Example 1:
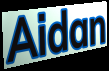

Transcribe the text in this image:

Aidan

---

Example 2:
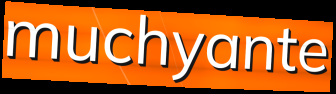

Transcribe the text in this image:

muchyante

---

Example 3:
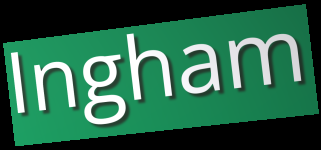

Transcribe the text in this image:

Ingham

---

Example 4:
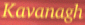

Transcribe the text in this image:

Kavanagh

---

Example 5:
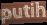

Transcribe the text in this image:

putih